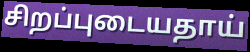
சிறப்புடையதாய்